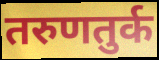
तरुणतुर्क